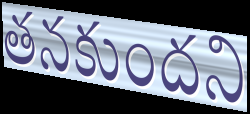
తనకుందని